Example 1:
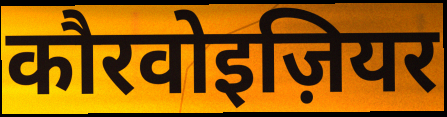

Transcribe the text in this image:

कौरवोइज़ियर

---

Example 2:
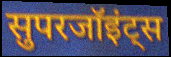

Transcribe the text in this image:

सुपरजॉइंट्स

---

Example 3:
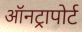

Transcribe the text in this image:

ऑनट्रापोर्ट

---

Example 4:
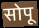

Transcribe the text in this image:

सोपू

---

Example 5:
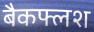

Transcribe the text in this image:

बैकफ्लश